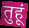
तुहूं